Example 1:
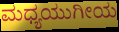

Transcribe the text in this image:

ಮಧ್ಯಯುಗೀಯ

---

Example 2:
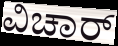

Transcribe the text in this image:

ವಿಚಾರ್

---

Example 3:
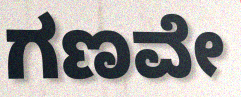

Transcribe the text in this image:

ಗಣವೇ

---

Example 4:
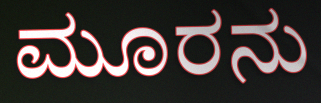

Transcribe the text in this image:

ಮೂರನು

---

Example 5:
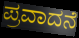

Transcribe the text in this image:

ಪ್ರವಾದನೆ